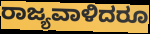
ರಾಜ್ಯವಾಳಿದರೂ